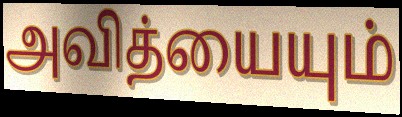
அவித்யையும்